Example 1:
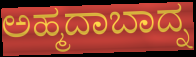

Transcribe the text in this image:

ಅಹ್ಮದಾಬಾದ್ನ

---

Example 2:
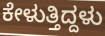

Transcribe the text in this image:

ಕೇಳುತ್ತಿದ್ದಳು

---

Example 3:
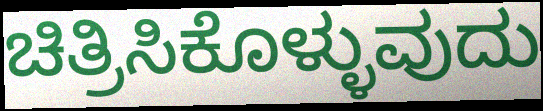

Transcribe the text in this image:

ಚಿತ್ರಿಸಿಕೊಳ್ಳುವುದು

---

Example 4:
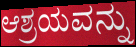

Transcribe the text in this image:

ಆಶ್ರಯವನ್ನು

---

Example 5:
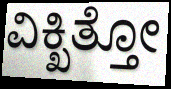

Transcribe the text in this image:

ವಿಕ್ಖಿತ್ತೋ